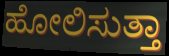
ಹೋಲಿಸುತ್ತಾ